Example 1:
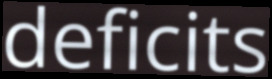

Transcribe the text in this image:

deficits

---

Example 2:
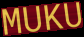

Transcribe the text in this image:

MUKU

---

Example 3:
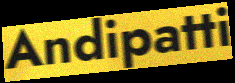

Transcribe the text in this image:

Andipatti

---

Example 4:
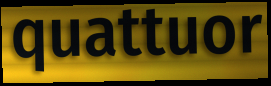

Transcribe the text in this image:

quattuor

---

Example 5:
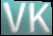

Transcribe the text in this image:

VK